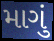
માગું